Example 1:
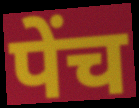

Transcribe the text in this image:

पेंच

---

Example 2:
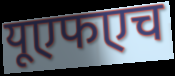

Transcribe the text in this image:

यूएफएच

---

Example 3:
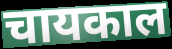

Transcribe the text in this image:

चायकाल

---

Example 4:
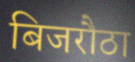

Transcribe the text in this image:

बिजरौठा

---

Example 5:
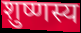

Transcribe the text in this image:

शुष्णस्य